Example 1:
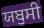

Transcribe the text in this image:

ਯਬੁਸੀ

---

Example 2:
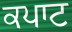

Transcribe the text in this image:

ਕਪਾਟ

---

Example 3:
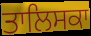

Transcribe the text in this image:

ਤਾਲਿਸਕਾ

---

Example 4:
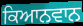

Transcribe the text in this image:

ਕਿਆਨਵਾਨ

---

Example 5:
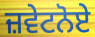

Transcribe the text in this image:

ਜ਼ਵੇਟਨੋਏ